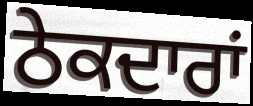
ਠੇਕਦਾਰਾਂ